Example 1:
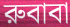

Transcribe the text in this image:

রুবাবা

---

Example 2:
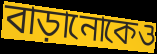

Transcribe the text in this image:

বাড়ানোকেও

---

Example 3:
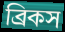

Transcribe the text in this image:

ব্রিকস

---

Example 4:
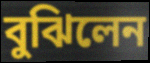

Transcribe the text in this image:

বুঝিলেন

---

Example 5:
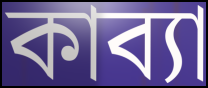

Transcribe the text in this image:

কাব্যা